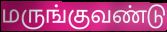
மருங்குவண்டு